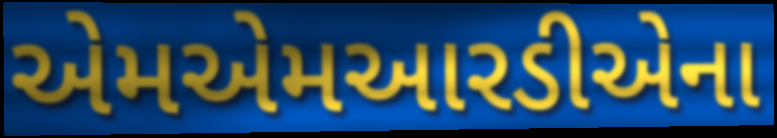
એમએમઆરડીએના